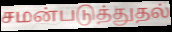
சமன்படுத்துதல்